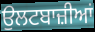
ਉਲਟਬਾਜ਼ੀਆਂ